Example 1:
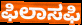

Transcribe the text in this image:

ಫಿಲಾಸಫಿ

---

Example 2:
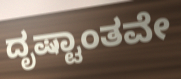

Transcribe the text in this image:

ದೃಷ್ಟಾಂತವೇ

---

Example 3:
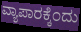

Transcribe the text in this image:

ವ್ಯಾಪಾರಕ್ಕೆಂದು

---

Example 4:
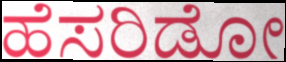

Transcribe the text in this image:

ಹೆಸರಿಡೋ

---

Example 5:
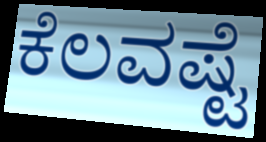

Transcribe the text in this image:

ಕೆಲವಷ್ಟೆ